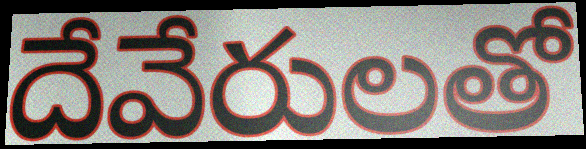
దేవేరులతో